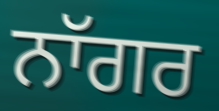
ਨਾੱਗਰ